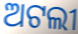
ଅଟଲୀ